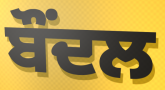
ਬੌਂਦਲ